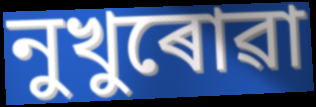
নুখুৰোৱা